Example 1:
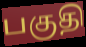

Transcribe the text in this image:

பகுதி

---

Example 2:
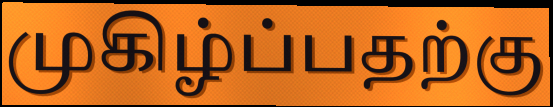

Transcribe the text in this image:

முகிழ்ப்பதற்கு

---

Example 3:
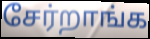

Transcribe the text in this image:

சேர்றாங்க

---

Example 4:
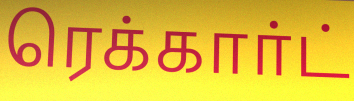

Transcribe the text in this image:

ரெக்கார்ட்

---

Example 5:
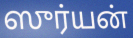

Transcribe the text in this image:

ஸுர்யன்